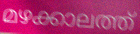
മഴക്കാലത്ത്